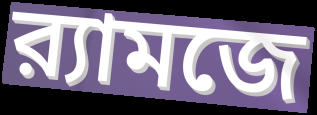
র‍্যামজে